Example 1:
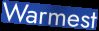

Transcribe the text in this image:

Warmest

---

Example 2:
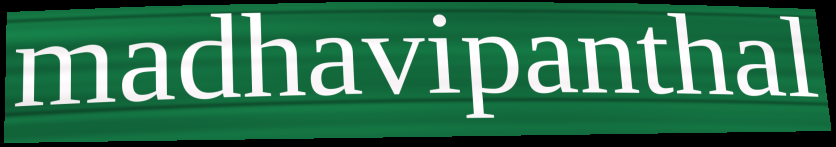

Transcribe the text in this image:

madhavipanthal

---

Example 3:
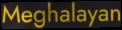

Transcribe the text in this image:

Meghalayan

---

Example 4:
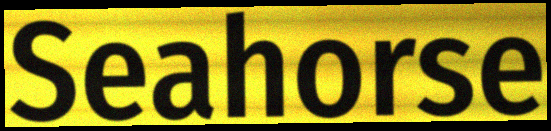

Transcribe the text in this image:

Seahorse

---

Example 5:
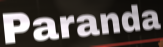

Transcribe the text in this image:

Paranda